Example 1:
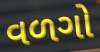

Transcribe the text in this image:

વળગો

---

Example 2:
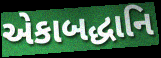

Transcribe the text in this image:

એકાબદ્ધાનિ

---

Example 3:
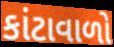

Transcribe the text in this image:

કાંટાવાળો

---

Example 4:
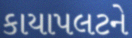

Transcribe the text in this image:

કાયાપલટને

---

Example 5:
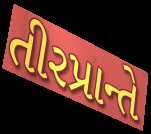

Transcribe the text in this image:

તીરપ્રાન્તે